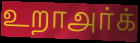
உறாஅர்க்